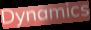
Dynamics